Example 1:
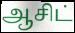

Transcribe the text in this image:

ஆசிட்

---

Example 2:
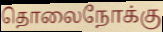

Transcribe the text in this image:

தொலைநோக்கு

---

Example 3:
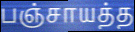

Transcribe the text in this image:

பஞ்சாயத்த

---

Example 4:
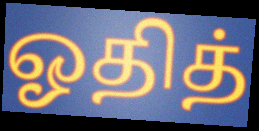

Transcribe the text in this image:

ஓதித்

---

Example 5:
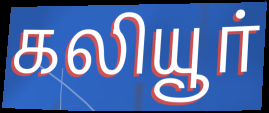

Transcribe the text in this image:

கலியூர்